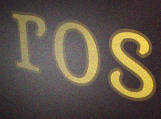
ros